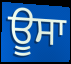
ਊਸਾ